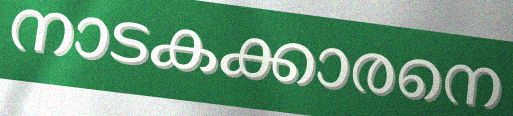
നാടകക്കാരനെ